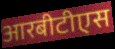
आरबीटीएस